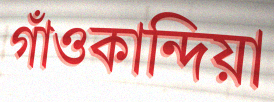
গাঁওকান্দিয়া